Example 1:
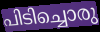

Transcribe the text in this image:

പിടിച്ചൊരു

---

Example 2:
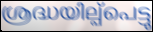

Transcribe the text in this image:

ശ്രദ്ധയില്പ്പെട്ടു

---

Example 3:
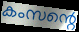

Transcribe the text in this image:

കംസന്റെ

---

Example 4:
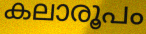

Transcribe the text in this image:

കലാരൂപം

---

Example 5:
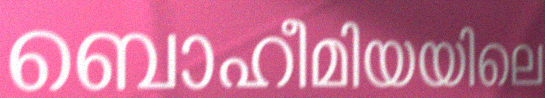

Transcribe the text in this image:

ബൊഹീമിയയിലെ